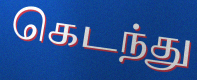
கெடந்து